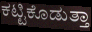
ಕಟ್ಟಿಕೊಡುತ್ತಾ